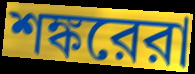
শঙ্করেরা